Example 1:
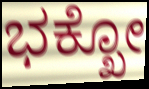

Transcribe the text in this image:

ಭಕ್ಖೋ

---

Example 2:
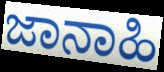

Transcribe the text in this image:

ಜಾನಾಹಿ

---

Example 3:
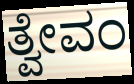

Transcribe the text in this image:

ತ್ವೇವಂ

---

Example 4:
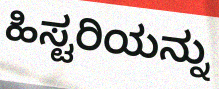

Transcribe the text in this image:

ಹಿಸ್ಟರಿಯನ್ನು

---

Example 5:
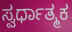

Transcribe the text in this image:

ಸ್ವರ್ಧಾತ್ಮಕ